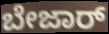
ಬೇಜಾರ್